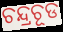
ଚନ୍ଦ୍ରଚୂଡ